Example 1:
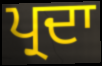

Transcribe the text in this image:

ਪ੍ਰਦਾ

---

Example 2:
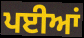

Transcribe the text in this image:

ਪਈਆਂ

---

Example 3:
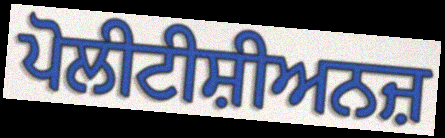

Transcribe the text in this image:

ਪੋਲੀਟੀਸ਼ੀਅਨਜ਼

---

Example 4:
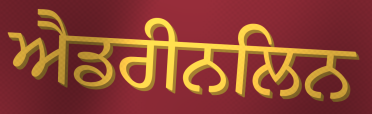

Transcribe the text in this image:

ਐਡਰੀਨਲਿਨ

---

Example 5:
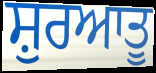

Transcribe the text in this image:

ਸ਼ੁਰਆਤੂ